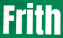
Frith